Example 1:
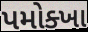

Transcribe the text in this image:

પમોક્ખા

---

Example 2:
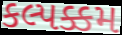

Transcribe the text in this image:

કલ્પક્કમ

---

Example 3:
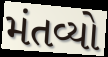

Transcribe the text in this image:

મંતવ્યો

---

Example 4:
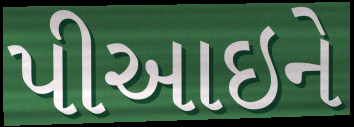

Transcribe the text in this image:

પીઆઇને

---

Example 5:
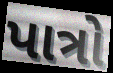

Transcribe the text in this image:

પાત્રો